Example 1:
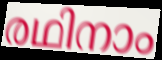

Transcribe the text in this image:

രഥിനാം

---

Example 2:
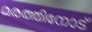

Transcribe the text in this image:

മരത്തിനോട്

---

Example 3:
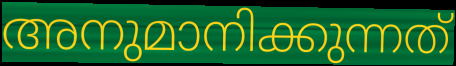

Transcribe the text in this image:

അനുമാനിക്കുന്നത്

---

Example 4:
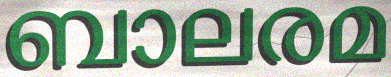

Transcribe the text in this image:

ബാലരമ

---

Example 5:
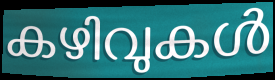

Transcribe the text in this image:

കഴിവുകൾ